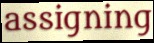
assigning